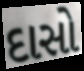
દાસો